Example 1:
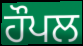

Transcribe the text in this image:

ਹੌਪਲ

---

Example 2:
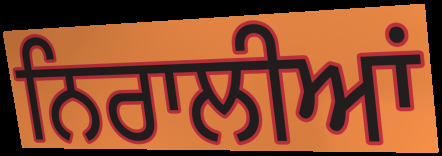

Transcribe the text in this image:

ਨਿਰਾਲੀਆਂ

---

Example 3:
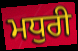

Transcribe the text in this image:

ਮਧੁਰੀ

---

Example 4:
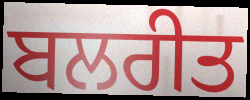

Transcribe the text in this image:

ਬਲਰੀਤ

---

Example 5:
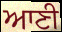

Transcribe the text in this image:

ਆਣੀ